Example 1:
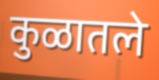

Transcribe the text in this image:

कुळातले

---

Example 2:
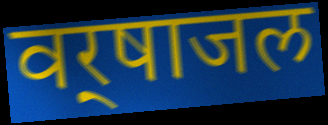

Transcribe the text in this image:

वर्षाजल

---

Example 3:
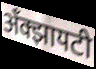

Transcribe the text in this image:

अँक्झायटी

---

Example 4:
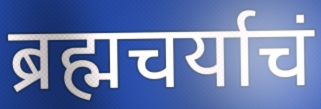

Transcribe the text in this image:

ब्रह्मचर्याचं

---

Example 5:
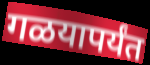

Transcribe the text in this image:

गळयापर्यंत